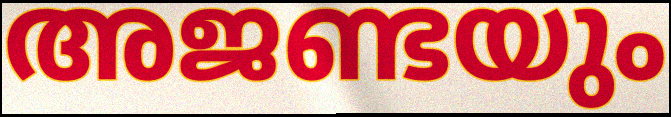
അജണ്ടയും